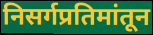
निसर्गप्रतिमांतून